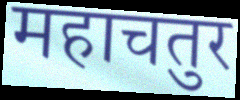
महाचतुर